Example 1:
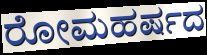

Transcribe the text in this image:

ರೋಮಹರ್ಷದ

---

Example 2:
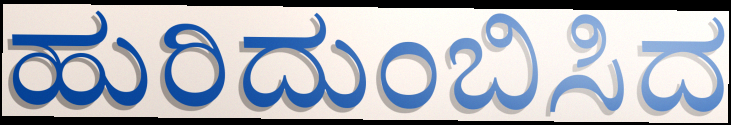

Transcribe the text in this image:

ಹುರಿದುಂಬಿಸಿದ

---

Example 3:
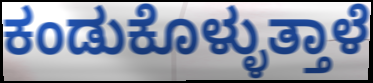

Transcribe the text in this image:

ಕಂಡುಕೊಳ್ಳುತ್ತಾಳೆ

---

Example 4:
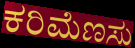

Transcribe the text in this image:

ಕರಿಮೆಣಸು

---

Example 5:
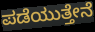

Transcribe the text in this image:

ಪಡೆಯುತ್ತೇನೆ